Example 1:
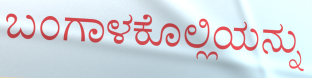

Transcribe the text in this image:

ಬಂಗಾಳಕೊಲ್ಲಿಯನ್ನು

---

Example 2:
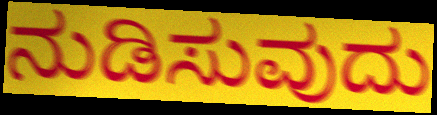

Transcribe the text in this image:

ನುಡಿಸುವುದು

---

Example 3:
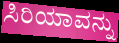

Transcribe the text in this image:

ಸಿರಿಯಾವನ್ನು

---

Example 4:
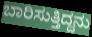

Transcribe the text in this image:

ಬಾರಿಸುತ್ತಿದ್ದನು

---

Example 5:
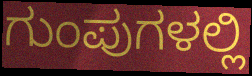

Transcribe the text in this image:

ಗುಂಪುಗಳಲ್ಲಿ